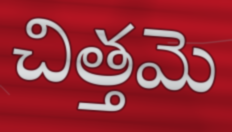
చిత్తమె